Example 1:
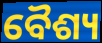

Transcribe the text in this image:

ବୈଶ୍ୟ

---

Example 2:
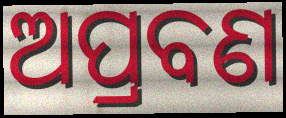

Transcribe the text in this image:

ଅପ୍ରବଣ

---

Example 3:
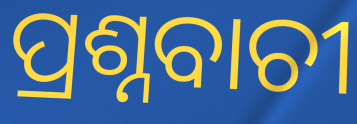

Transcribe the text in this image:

ପ୍ରଶ୍ନବାଚୀ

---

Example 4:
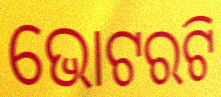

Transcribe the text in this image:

ଭୋଟରଟି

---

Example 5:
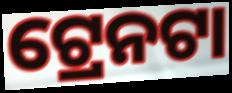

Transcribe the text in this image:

ଟ୍ରେନଟା